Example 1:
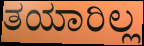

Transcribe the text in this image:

ತಯಾರಿಲ್ಲ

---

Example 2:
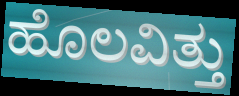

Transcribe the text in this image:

ಹೊಲವಿತ್ತು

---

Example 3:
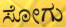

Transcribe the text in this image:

ಸೋಗು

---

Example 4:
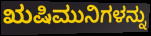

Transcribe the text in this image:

ಋಷಿಮುನಿಗಳನ್ನು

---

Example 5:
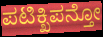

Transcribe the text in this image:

ಪಟಿಕ್ಖಿಪನ್ತೋ